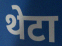
थेटा